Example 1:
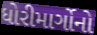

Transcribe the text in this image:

ધોરીમાર્ગોનો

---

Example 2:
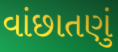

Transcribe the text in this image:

વાંછાતણું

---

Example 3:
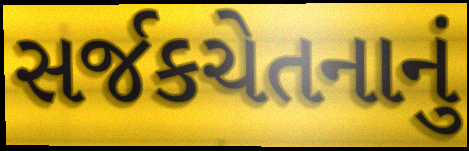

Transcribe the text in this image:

સર્જકચેતનાનું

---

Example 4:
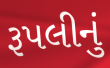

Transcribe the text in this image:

રૂપલીનું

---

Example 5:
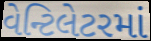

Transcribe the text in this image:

વેન્ટિલેટરમાં